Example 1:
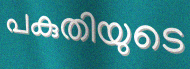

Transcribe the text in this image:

പകുതിയുടെ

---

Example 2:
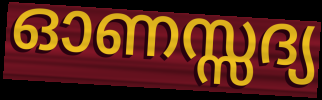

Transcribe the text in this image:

ഓണസ്സദ്യ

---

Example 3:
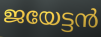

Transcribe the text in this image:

ജയേട്ടൻ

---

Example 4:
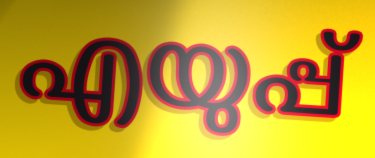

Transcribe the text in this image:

എയുപ്പ്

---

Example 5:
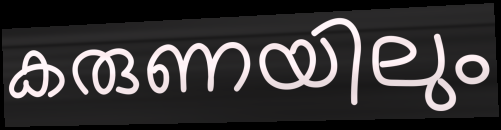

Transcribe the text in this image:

കരുണയിലും